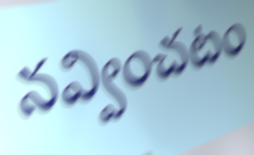
నవ్వించటం